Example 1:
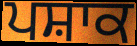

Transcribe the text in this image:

ਪਸ਼ਾਕ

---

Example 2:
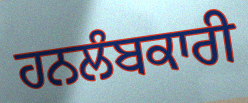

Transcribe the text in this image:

ਹਨਲੰਬਕਾਰੀ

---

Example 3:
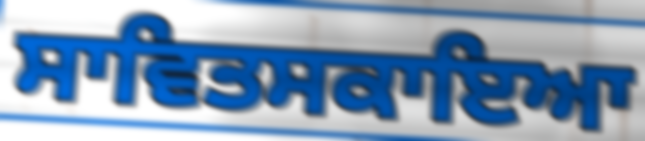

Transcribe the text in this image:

ਸਾਵਿਤਸਕਾਇਆ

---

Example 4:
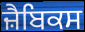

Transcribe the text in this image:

ਜ਼ੈਬਿਕਸ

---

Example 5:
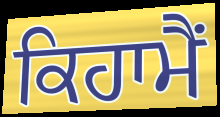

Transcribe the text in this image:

ਕਿਹਾਮੈਂ